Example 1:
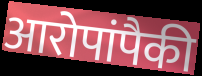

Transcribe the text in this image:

आरोपांपैकी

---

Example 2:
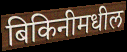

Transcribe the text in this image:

बिकिनीमधील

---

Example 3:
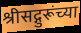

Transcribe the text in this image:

श्रीसद्गुरूंच्या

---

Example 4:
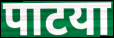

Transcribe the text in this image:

पाटया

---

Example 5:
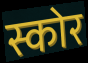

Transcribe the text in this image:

स्कोर